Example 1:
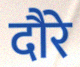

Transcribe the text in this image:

दौरे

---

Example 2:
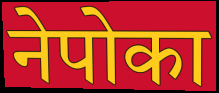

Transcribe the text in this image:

नेपोका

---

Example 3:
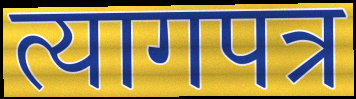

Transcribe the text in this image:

त्यागपत्र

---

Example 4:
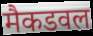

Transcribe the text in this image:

मैकडवल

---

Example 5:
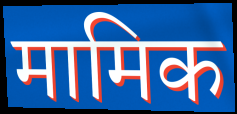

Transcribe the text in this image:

मामिक